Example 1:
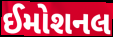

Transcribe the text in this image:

ઈમોશનલ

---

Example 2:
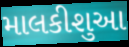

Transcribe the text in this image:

માલકીશુઆ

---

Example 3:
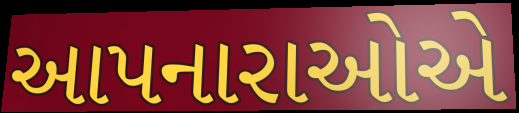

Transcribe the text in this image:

આપનારાઓએ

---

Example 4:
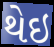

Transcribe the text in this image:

થેઇ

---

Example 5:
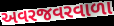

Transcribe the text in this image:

અવરજવરવાળા